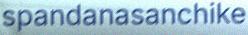
spandanasanchike